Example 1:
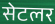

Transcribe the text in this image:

सेटलर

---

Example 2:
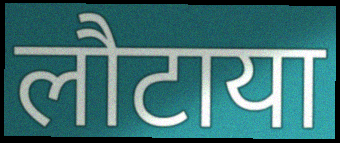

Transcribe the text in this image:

लौटाया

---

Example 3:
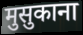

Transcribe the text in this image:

मुसुकाना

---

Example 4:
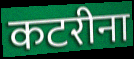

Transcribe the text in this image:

कटरीना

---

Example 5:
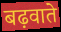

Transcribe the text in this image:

बढ़वाते